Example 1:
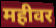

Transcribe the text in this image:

महीवर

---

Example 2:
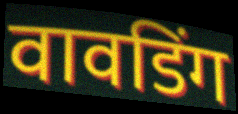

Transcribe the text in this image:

वावडिंग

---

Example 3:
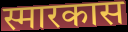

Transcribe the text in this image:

स्मारकास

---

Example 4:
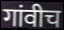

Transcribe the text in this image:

गांवीच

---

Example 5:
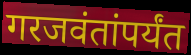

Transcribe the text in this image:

गरजवंतांपर्यंत